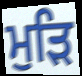
ਮੁੜਿ